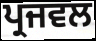
ਪ੍ਰਜਵਲ